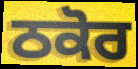
ਠਕੋਰ